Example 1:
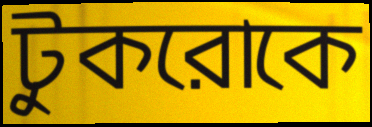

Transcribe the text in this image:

টুকরোকে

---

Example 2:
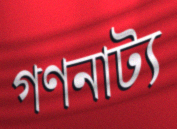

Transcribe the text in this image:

গণনাট্য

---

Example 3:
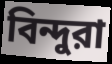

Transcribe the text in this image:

বিন্দুরা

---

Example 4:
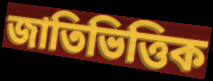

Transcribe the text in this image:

জাতিভিত্তিক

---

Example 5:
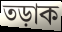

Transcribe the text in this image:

তড়াক